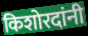
किशोरदांनी